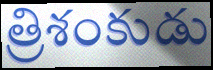
త్రిశంకుడు